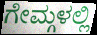
ಗೇಮ್ಗಳಲ್ಲಿ